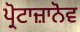
ਪ੍ਰੋਟਾਜ਼ਾਨੋਵ